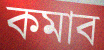
কমাব